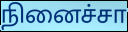
நினைச்சா